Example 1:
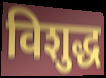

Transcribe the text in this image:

विशुद्ध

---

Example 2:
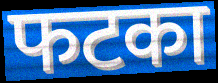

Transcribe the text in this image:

फटका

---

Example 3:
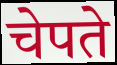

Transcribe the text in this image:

चेपते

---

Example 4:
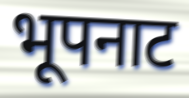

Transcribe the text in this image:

भूपनाट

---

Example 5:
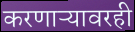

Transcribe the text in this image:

करणाऱ्यावरही